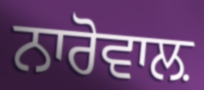
ਨਾਰੋਵਾਲ਼